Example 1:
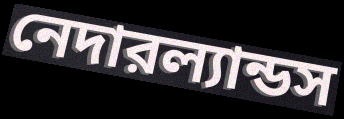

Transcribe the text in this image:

নেদারল্যান্ডস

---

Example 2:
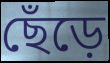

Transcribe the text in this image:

ছেঁড়ে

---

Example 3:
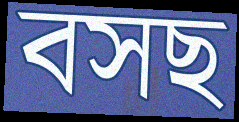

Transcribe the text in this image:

বসছ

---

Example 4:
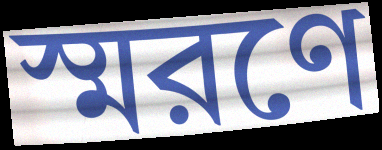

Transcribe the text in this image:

স্মরণে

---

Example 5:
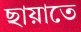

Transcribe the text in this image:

ছায়াতে